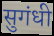
सुगंधी